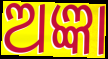
ଅଜ୍ଞା